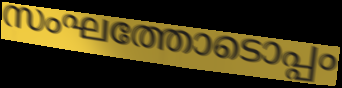
സംഘത്തോടൊപ്പം